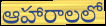
ఆహారాలలో